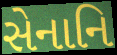
સેનાનિ